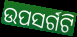
ଉପସର୍ଗଟି